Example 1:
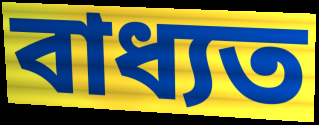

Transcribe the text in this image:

বাধ্যত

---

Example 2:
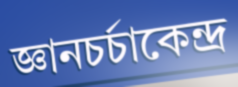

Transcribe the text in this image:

জ্ঞানচর্চাকেন্দ্র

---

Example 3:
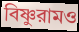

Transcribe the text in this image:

বিষ্ণুরামও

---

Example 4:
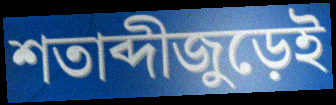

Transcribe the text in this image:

শতাব্দীজুড়েই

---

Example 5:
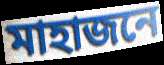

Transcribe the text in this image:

মাহাজনে